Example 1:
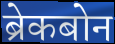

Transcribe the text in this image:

ब्रेकबोन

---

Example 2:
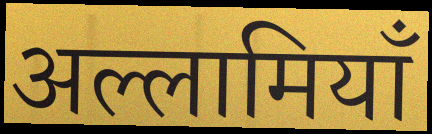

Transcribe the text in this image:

अल्लामियाँ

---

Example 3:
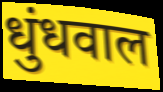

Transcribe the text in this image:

धुंधवाल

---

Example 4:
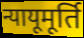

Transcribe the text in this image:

न्यायूमूर्ति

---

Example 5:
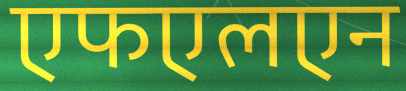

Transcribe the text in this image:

एफएलएन